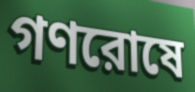
গণরোষে